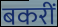
बकरीं